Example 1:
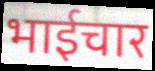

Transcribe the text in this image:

भाईचार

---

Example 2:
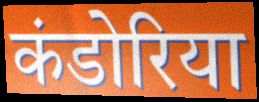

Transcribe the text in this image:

कंडोरिया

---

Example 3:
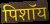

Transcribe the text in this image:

पिशॉय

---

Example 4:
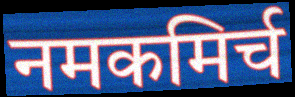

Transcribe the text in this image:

नमकमिर्च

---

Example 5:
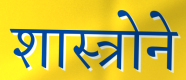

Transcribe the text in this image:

शास्त्रोने